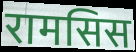
रामसिस